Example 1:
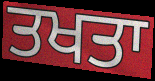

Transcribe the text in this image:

ਤਖਤਾ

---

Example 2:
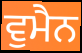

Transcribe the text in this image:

ਵੁਮੈਨ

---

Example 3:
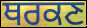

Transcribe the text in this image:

ਥਰਕਣ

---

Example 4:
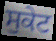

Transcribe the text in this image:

ਸੁਕੇਟ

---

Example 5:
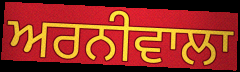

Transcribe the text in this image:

ਅਰਨੀਵਾਲਾ